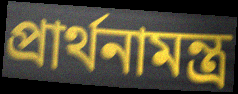
প্রার্থনামন্ত্র